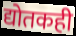
द्योतकही